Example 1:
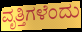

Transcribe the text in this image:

ವೃತ್ತಿಗಳೆಂದು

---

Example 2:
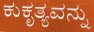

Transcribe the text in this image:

ಕುಕೃತ್ಯವನ್ನು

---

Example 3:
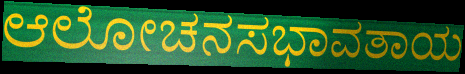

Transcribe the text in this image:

ಆಲೋಚನಸಭಾವತಾಯ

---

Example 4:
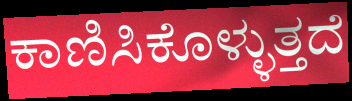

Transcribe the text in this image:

ಕಾಣಿಸಿಕೊಳ್ಳುತ್ತದೆ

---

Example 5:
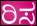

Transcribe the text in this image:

ರಿಸ